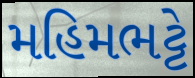
મહિમભટ્ટે